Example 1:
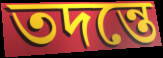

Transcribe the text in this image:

তদন্তে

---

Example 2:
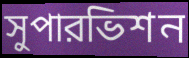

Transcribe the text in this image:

সুপারভিশন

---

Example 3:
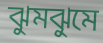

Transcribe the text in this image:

ঝুমঝুমে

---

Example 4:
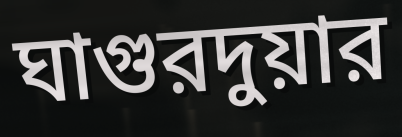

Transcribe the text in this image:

ঘাগুরদুয়ার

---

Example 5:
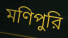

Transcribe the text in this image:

মণিপুরি